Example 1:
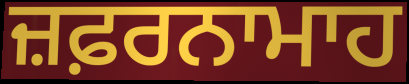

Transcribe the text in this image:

ਜ਼ਫ਼ਰਨਾਮਾਹ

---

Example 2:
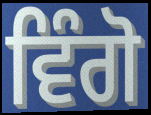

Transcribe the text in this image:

ਵਿੰਗੋ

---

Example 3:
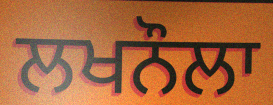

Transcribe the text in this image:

ਲਖਨੌਲਾ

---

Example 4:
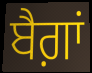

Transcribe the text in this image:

ਬੈਗ਼ਾਂ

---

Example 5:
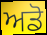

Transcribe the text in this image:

ਅਡੋ